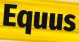
Equus